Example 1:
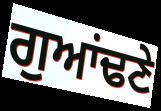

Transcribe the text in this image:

ਗੁਆਂਢਣੇ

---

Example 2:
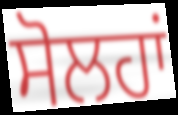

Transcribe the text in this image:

ਸੋਲਹਾਂ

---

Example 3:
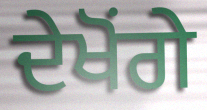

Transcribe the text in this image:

ਦੇਖੋਂਗੇ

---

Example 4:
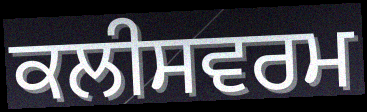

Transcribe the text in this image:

ਕਲੀਸਵਰਮ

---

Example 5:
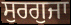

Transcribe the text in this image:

ਸੁਰਗੁਜਾ